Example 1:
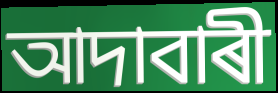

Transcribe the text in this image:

আদাবাৰী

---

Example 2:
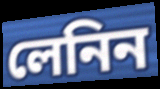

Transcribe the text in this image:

লেনিন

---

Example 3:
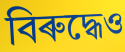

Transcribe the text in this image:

বিৰুদ্ধেও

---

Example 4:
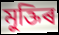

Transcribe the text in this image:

মুক্তিৰ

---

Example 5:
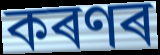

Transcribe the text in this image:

কৰণৰ